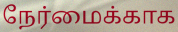
நேர்மைக்காக